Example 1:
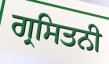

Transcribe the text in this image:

ਗ੍ਰਸਿਤਨੀ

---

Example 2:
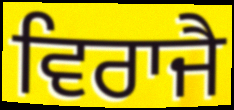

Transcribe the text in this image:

ਵਿਰਾਜੈ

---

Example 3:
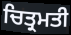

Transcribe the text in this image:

ਚਿਤ੍ਰਮਤੀ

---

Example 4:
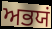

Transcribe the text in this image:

ਅਭਯਂ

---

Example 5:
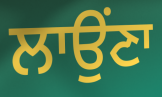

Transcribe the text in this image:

ਲਾਉਂਣਾ